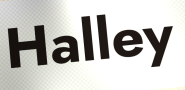
Halley